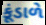
કૂંડાળે